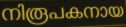
നിരൂപകനായ